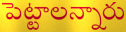
పెట్టాలన్నారు